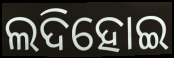
ଲଦିହୋଇ